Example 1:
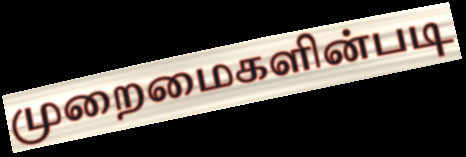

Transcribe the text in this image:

முறைமைகளின்படி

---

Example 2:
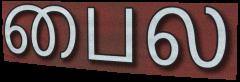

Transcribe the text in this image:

பைல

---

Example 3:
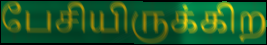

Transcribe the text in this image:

பேசியிருக்கிற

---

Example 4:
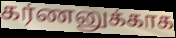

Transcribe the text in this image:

கர்ணனுக்காக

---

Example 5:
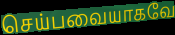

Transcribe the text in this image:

செய்பவையாகவே